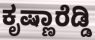
ಕೃಷ್ಣಾರೆಡ್ಡಿ